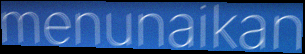
menunaikan